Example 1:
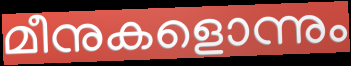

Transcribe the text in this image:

മീനുകളൊന്നും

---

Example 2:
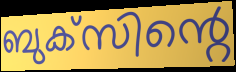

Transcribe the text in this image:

ബുക്‌സിന്റെ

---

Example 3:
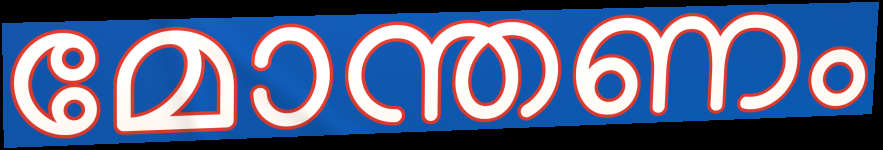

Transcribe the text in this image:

മോന്തണം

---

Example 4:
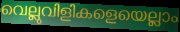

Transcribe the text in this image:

വെല്ലുവിളികളെയെല്ലാം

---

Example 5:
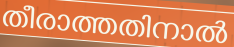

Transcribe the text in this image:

തീരാത്തതിനാൽ